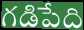
గడిపేది